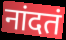
नांदतं